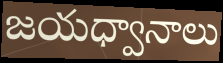
జయధ్వానాలు